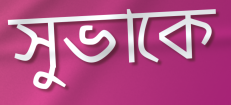
সুভাকে